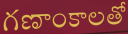
గణాంకాలతో